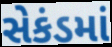
સેકંડમાં